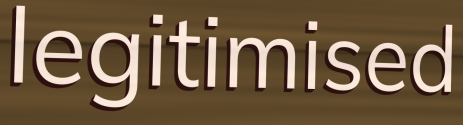
legitimised